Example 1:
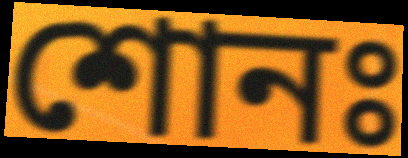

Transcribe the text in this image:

শোনঃ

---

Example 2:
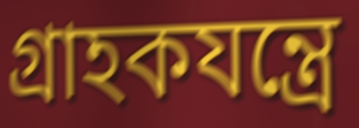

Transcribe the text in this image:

গ্রাহকযন্ত্রে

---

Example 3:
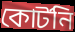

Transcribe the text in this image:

কোর্টনি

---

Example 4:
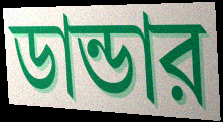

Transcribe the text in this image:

ডান্ডার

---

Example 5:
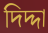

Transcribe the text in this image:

দিদ্দা